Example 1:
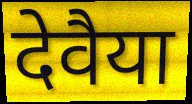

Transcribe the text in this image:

देवैया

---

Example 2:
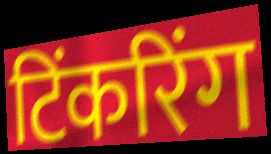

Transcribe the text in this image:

टिंकरिंग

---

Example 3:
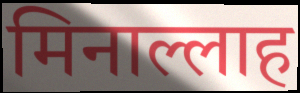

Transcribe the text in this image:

मिनाल्लाह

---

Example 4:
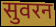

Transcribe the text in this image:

सुवरन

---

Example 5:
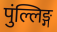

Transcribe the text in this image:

पुंल्लिङ्ग